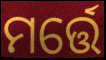
ମର୍ତ୍ତେ